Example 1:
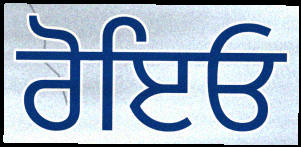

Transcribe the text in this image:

ਰੋਇਓ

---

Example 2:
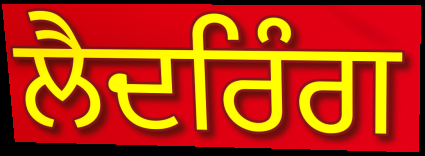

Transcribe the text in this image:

ਲੈਦਰਿੰਗ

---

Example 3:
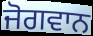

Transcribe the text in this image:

ਜੋਗਵਾਨ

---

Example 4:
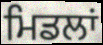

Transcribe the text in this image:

ਮਿਡਲਾਂ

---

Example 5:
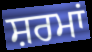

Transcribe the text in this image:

ਸ਼ਰਮਾਂ